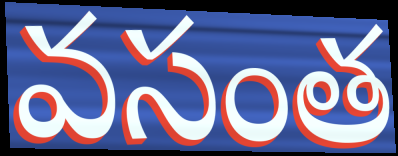
వసంత